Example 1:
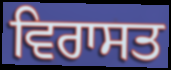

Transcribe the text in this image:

ਵਿਰਾਸਤ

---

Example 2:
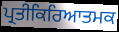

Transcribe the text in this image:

ਪ੍ਰਤੀਕਿਰਿਆਤਮਕ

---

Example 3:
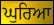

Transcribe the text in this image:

ਘੁਰਿਆ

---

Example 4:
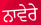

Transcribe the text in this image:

ਨਾਵੇਰੇ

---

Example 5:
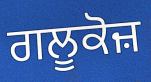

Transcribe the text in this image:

ਗਲੂਕੋਜ਼